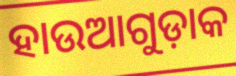
ହାଉଆଗୁଡ଼ାକ